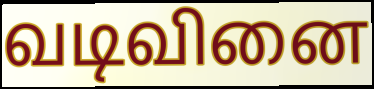
வடிவினை